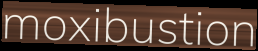
moxibustion